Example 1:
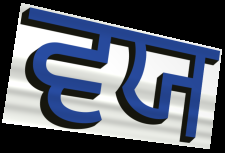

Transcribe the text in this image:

ਵਯ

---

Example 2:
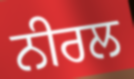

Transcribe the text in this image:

ਨੀਰਲ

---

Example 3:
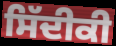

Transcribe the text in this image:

ਸਿੱਦੀਕੀ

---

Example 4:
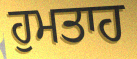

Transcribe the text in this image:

ਹੁਮਤਾਹ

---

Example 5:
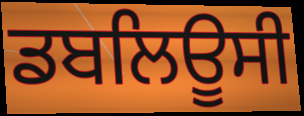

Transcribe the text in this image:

ਡਬਲਿਊਸੀ